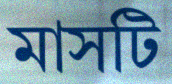
মাসটি